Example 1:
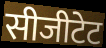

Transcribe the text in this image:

सीजीटेट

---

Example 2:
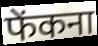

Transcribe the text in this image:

फेंकना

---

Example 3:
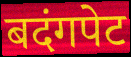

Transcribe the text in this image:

बदंगपेट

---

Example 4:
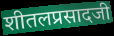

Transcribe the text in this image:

शीतलप्रसादजी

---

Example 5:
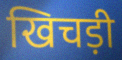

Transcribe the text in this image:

खिचड़ी